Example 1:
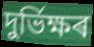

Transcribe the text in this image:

দুৰ্ভিক্ষৰ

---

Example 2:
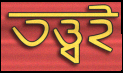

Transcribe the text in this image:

তত্ত্বই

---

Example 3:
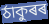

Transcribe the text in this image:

ঠাকুৰৰ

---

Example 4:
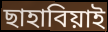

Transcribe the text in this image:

ছাহাবিয়াই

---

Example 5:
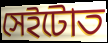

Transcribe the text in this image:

সেইটোত